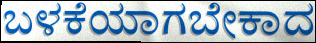
ಬಳಕೆಯಾಗಬೇಕಾದ